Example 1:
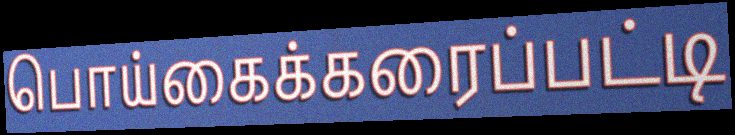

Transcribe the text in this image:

பொய்கைக்கரைப்பட்டி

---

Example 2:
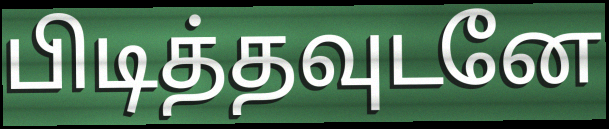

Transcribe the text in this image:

பிடித்தவுடனே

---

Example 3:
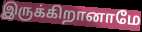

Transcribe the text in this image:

இருக்கிறானாமே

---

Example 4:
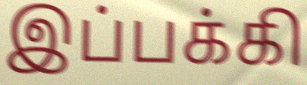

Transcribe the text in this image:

இப்பக்கி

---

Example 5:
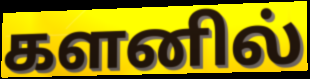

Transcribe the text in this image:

களனில்